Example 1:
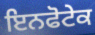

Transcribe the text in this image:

ਇਨਫੋਟੇਕ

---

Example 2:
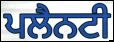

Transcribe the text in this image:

ਪਲੈਨਟੀ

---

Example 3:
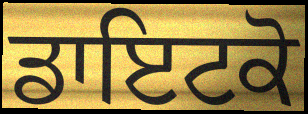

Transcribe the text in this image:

ਡਾਇਟਕੋ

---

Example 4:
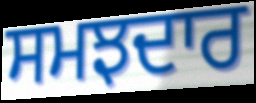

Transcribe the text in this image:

ਸਮਝਦਾਰ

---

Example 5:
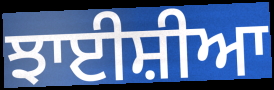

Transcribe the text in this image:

ਝਾਈਸ਼ੀਆ